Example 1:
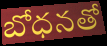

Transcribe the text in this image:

బోధనతో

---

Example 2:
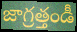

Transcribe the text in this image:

జాగ్రత్తండీ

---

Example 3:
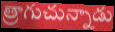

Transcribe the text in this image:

త్రాగుచున్నాడు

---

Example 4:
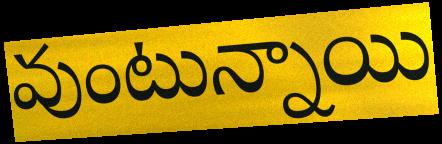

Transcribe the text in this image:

వుంటున్నాయి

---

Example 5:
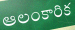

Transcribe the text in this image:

ఆలంకారిక